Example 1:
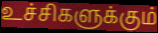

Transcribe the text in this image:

உச்சிகளுக்கும்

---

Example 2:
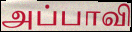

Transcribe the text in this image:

அப்பாவி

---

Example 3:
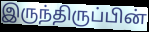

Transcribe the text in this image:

இருந்திருப்பின்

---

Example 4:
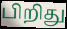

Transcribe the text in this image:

பிறிது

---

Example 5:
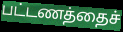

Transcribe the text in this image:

பட்டணத்தைச்